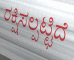
ರಕ್ಷಿಸಲ್ಪಟ್ಟಿದೆ